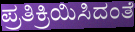
ಪ್ರತಿಕ್ರಿಯಿಸಿದಂತೆ